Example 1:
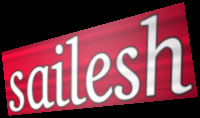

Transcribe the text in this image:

sailesh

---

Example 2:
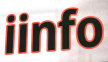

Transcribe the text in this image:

iinfo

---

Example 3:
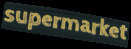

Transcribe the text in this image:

supermarket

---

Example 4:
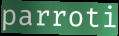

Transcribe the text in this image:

parroti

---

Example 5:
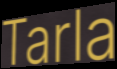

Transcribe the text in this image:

Tarla